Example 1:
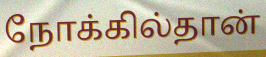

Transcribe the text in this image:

நோக்கில்தான்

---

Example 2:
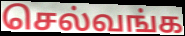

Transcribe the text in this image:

செல்வங்க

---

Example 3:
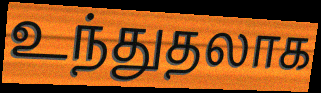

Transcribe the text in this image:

உந்துதலாக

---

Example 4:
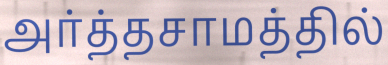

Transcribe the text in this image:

அர்த்தசாமத்தில்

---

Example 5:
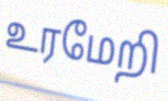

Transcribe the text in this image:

உரமேறி